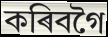
কৰিবগৈ